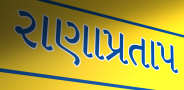
રાણાપ્રતાપ